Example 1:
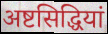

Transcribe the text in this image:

अष्टसिद्धियां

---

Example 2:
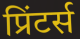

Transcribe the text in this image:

प्रिंटर्स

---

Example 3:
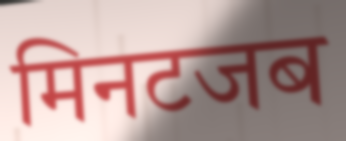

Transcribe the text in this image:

मिनटजब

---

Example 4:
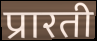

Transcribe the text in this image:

प्रारती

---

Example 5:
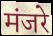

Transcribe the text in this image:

मंजरे